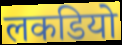
लकडियो